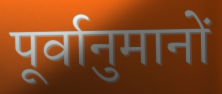
पूर्वानुमानों